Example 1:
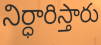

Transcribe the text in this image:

నిర్ధారిస్తారు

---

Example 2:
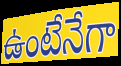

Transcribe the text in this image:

ఉంటేనేగా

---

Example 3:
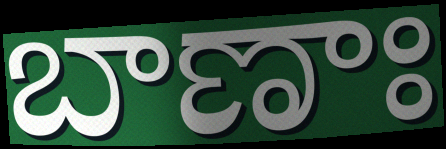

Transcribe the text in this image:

బాణాః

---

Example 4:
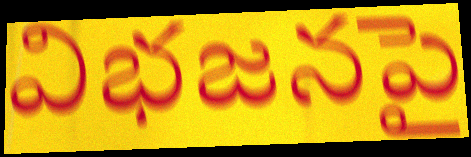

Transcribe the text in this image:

విభజనపై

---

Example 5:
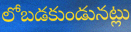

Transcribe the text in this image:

లోబడకుండునట్లు